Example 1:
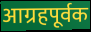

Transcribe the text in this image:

आग्रहपूर्वक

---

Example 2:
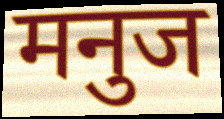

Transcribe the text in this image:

मनुज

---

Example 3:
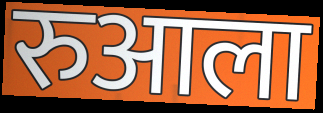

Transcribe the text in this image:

रुआला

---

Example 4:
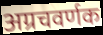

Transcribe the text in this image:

अग्रचवर्णक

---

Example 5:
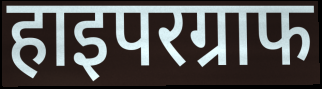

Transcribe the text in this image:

हाइपरग्राफ